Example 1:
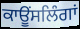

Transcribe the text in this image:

ਕਾਊਂਸਲਿੰਗਾਂ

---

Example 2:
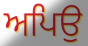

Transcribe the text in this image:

ਅਪਿਉ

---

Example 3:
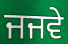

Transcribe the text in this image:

ਜਜਵੇ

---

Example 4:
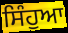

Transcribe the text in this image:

ਸਿੰਹੁਆ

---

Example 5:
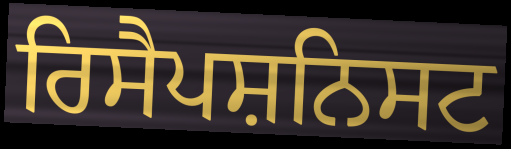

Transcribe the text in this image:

ਰਿਸੈਪਸ਼ਨਿਸਟ